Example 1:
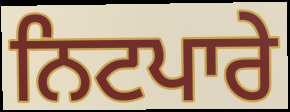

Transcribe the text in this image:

ਨਿਟਪਾਰੇ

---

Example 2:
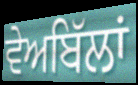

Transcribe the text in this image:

ਵੇਅਬਿੱਲਾਂ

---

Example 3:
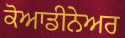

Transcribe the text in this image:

ਕੋਆਡੀਨੇਅਰ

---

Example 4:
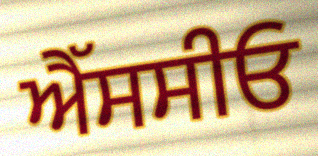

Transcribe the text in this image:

ਐੱਸਸੀਓ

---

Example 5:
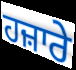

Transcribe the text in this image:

ਹਜ਼ਾਰੇ